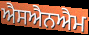
ਐਸਐਨਐਮ